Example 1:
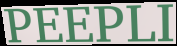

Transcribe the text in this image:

PEEPLI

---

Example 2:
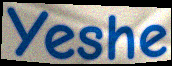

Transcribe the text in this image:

Yeshe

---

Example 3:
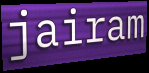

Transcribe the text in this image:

jairam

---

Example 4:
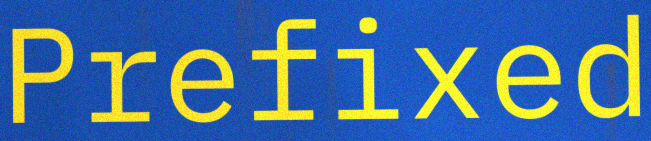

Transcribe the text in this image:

Prefixed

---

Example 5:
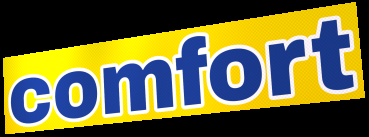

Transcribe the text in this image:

comfort